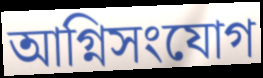
আগ্নিসংযোগ